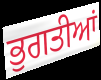
ਭੁਗਤੀਆਂ